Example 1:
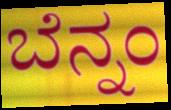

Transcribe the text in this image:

ಬೆನ್ನಂ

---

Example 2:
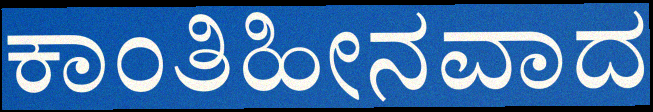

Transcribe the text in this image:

ಕಾಂತಿಹೀನವಾದ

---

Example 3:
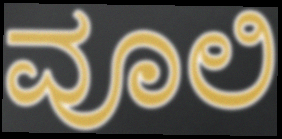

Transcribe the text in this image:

ವೂಲಿ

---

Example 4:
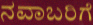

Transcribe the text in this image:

ನವಾಬರಿಗೆ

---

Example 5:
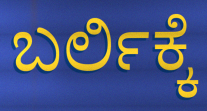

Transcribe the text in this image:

ಬರ್ಲಿಕ್ಕೆ